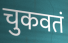
चुकवतं